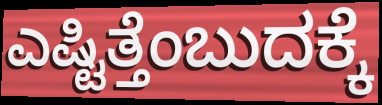
ಎಷ್ಟಿತ್ತೆಂಬುದಕ್ಕೆ